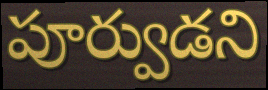
పూర్వుడని